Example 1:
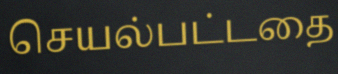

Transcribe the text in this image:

செயல்பட்டதை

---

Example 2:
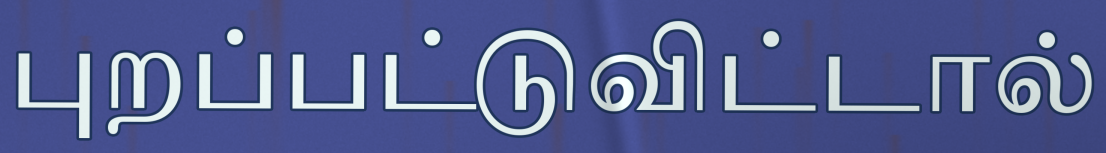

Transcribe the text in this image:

புறப்பட்டுவிட்டால்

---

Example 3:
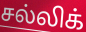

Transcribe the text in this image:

சல்லிக்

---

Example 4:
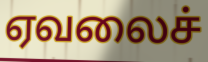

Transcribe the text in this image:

ஏவலைச்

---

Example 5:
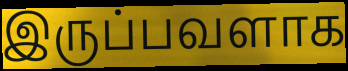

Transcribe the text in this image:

இருப்பவளாக